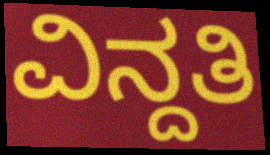
ವಿನ್ದತಿ